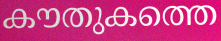
കൗതുകത്തെ